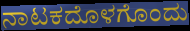
ನಾಟಕದೊಳಗೊಂದು